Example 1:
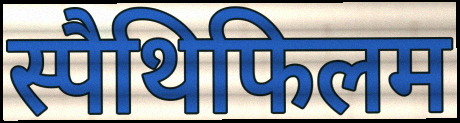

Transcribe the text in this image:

स्पैथिफिलम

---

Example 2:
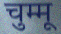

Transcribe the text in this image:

चुम्मू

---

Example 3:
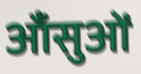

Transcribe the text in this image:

आँसुओं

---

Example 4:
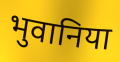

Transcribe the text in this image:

भुवानिया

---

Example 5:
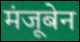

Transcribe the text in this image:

मंजूबेन